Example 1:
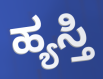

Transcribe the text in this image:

ಹ್ಯಸ್ತಿ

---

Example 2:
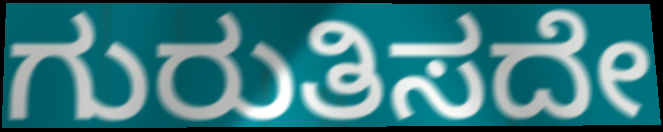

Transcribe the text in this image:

ಗುರುತಿಸದೇ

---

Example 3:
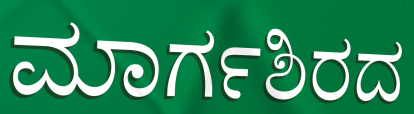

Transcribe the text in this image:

ಮಾರ್ಗಶಿರದ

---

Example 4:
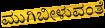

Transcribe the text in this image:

ಮುಗಿಬೀಳುವಂತೆ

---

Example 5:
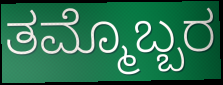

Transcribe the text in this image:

ತಮ್ಮೊಬ್ಬರ